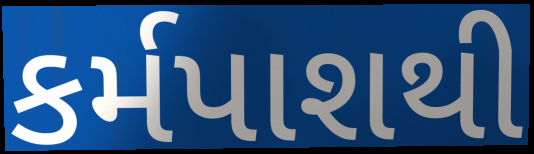
કર્મપાશથી